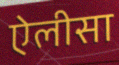
ऐलीसा